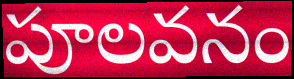
పూలవనం